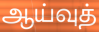
ஆய்வுத்